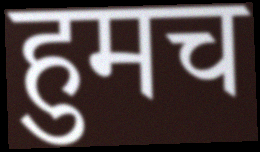
हुमच